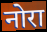
नोरा